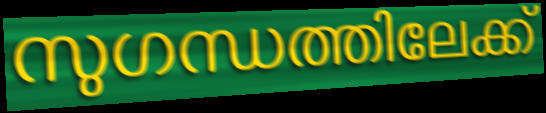
സുഗന്ധത്തിലേക്ക്